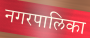
नगरपालिका